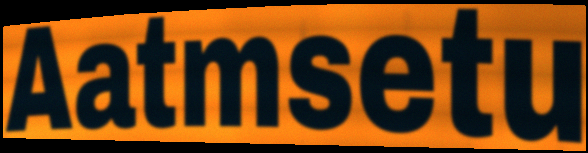
Aatmsetu